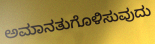
ಅಮಾನತುಗೊಳಿಸುವುದು